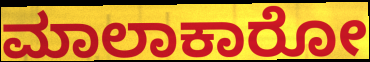
ಮಾಲಾಕಾರೋ